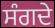
ਸੰਗਦੇ